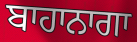
ਬਾਹਾਨਾਗਾ